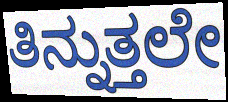
ತಿನ್ನುತ್ತಲೇ